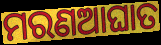
ମରଣଆଘାତ